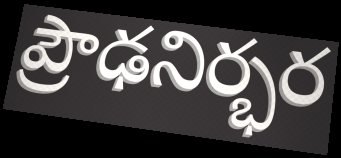
ప్రౌఢనిర్భర